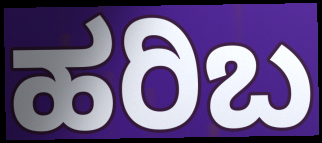
ಹರಿಬ